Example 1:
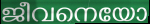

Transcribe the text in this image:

ജീവനെയോ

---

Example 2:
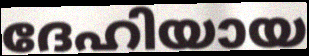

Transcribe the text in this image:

ദേഹിയായ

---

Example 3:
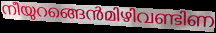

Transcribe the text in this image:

നീയുറങ്ങെൻമിഴിവണ്ടിണ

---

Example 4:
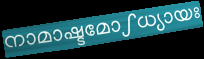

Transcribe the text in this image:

നാമാഷ്ടമോഽധ്യായഃ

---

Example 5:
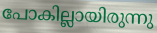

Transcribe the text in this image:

പോകില്ലായിരുന്നു